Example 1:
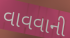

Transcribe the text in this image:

વાવવાની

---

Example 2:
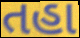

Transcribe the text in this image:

તહા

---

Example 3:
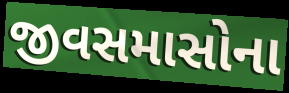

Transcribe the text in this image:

જીવસમાસોના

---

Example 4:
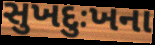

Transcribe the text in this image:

સુખદુઃખના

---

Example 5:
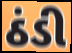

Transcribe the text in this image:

ઠંડી